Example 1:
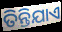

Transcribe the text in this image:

ତିନ୍ତିଯାଏ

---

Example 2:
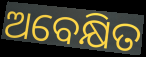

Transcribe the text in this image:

ଅବେକ୍ଷିତ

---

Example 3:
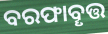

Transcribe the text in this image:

ବରଫାବୄତ୍ତ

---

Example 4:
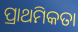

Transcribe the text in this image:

ପ୍ରାଥମିକତା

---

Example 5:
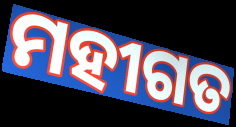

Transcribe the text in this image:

ମହୀଗତ